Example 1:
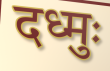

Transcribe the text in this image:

दध्मुः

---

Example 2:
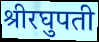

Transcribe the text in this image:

श्रीरघुपती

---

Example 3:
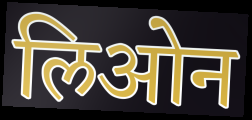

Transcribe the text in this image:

लिओन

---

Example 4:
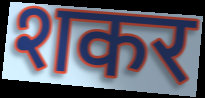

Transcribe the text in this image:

शकर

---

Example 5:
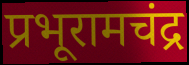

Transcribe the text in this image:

प्रभूरामचंद्र